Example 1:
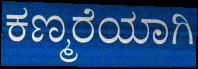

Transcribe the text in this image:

ಕಣ್ಮರೆಯಾಗಿ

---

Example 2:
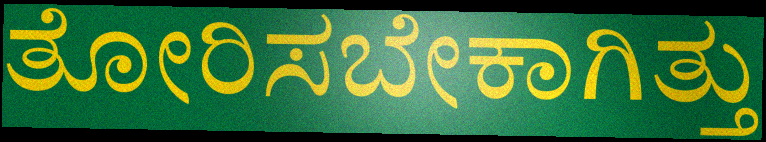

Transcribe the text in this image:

ತೋರಿಸಬೇಕಾಗಿತ್ತು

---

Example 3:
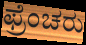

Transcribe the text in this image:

ಫ್ರೆಂಚರು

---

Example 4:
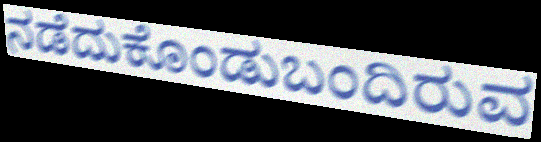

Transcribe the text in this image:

ನಡೆದುಕೊಂಡುಬಂದಿರುವ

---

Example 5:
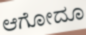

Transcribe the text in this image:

ಆಗೋದೂ